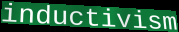
inductivism